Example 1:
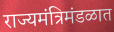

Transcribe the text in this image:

राज्यमंत्रिमंडळात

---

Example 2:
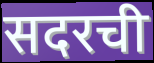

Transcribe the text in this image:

सदरची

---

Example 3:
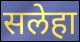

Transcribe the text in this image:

सलेहा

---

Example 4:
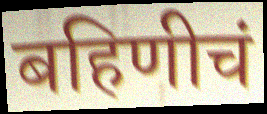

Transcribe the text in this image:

बहिणीचं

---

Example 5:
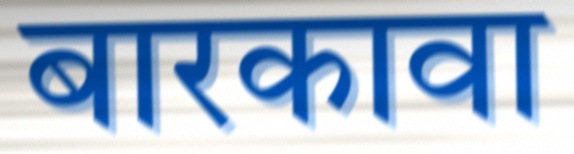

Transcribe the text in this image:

बारकावा